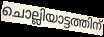
ചൊല്ലിയാട്ടത്തിന്